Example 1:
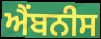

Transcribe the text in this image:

ਐਂਬਨੀਸ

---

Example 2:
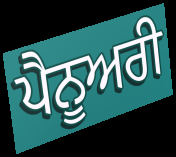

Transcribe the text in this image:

ਪੈਨੂਅਰੀ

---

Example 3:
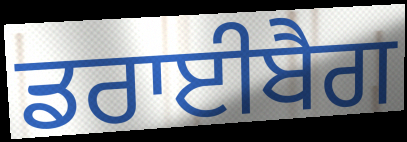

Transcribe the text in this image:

ਡਰਾਈਬੈਗ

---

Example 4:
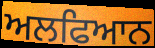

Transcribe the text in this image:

ਅਲਫਿਆਨ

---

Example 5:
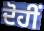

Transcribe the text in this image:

ਦੋਹੀਂ